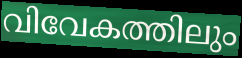
വിവേകത്തിലും